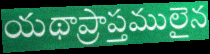
యథాప్రాప్తములైన